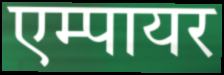
एम्पायर